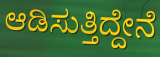
ಆಡಿಸುತ್ತಿದ್ದೇನೆ